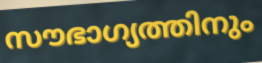
സൗഭാഗ്യത്തിനും